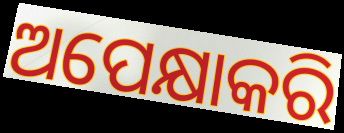
ଅପେକ୍ଷାକରି